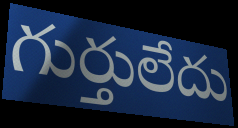
గుర్తులేదు